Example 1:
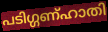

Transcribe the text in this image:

പടിഗ്ഗണ്ഹാതി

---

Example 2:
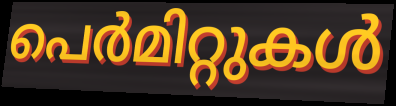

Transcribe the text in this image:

പെർമിറ്റുകൾ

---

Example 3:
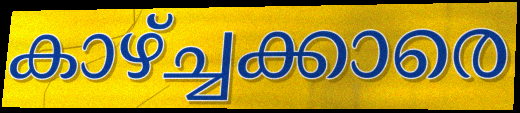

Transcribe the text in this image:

കാഴ്ച്ചക്കാരെ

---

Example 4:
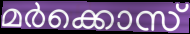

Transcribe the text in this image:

മർക്കൊസ്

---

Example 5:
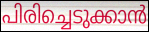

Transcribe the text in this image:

പിരിച്ചെടുക്കാൻ